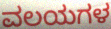
ವಲಯಗಳ